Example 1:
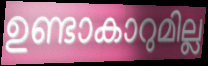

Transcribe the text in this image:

ഉണ്ടാകാറുമില്ല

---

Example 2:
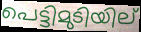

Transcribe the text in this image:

പെട്ടിമുടിയില്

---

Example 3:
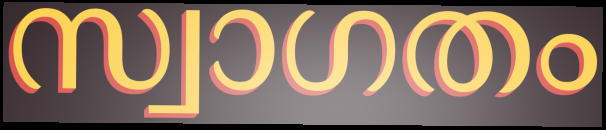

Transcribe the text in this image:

സ്വാഗതം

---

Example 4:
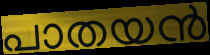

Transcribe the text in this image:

പാതയൻ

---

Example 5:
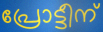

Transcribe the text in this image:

പ്രോട്ടീന്